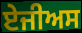
ਏਜੀਅਸ